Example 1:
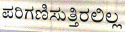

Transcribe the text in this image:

ಪರಿಗಣಿಸುತ್ತಿರಲಿಲ್ಲ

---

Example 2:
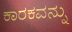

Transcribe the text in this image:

ಕಾರಕವನ್ನು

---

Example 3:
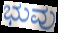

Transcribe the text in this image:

ಭುವು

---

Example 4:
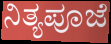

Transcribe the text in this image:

ನಿತ್ಯಪೂಜೆ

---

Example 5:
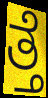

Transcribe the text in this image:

ತ್ತೆ